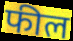
फील